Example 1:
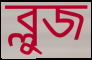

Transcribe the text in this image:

ব্লুজ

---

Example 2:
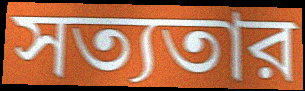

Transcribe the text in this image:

সত্যতার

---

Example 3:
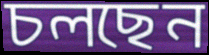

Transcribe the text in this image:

চলছেন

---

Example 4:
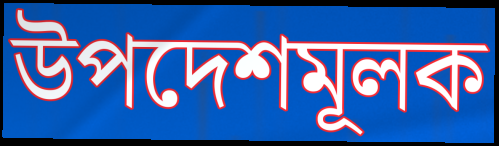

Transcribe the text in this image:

উপদেশমূলক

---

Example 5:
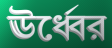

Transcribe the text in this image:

ঊর্ধ্বের